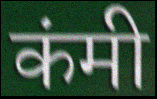
कंमी